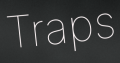
Traps